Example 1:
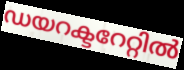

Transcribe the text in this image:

ഡയറക്ടറേറ്റിൽ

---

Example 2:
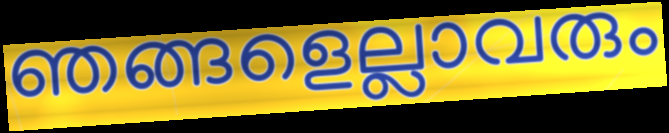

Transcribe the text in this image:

ഞങ്ങളെല്ലാവരും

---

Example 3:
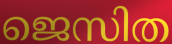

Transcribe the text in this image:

ജെസിത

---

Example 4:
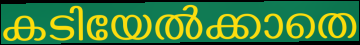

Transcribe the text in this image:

കടിയേൽക്കാതെ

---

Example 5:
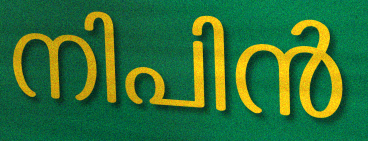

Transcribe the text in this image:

നിപിൻ